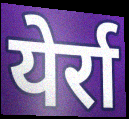
येर्रा